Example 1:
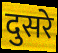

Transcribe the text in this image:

दुसरे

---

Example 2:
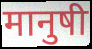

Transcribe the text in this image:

मानुषी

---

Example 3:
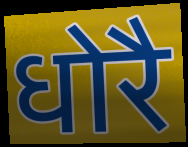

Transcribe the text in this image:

धोरै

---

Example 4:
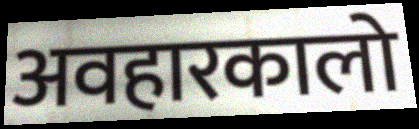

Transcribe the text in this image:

अवहारकालो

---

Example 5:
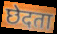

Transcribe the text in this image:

छेदता